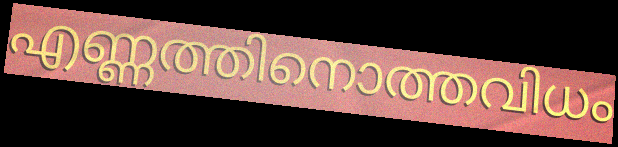
എണ്ണത്തിനൊത്തവിധം